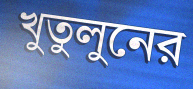
খুতুলুনের